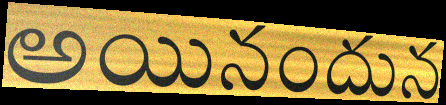
అయినందున